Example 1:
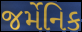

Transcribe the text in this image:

જર્મેનિક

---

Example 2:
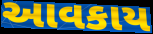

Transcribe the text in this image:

આવકાય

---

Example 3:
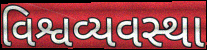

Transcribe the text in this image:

વિશ્વવ્યવસ્થા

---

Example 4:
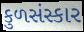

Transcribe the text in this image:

કુળસંસ્કાર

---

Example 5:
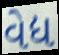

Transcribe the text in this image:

વેદ્ય